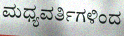
ಮಧ್ಯವರ್ತಿಗಳಿಂದ